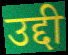
उद्दी